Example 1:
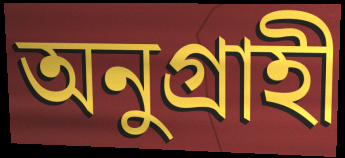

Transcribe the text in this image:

অনুগ্রাহী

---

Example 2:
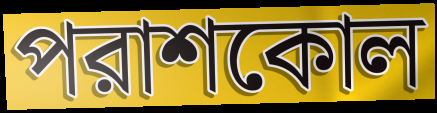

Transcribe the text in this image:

পরাশকোল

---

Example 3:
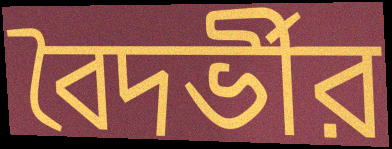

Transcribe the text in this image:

বৈদর্ভীর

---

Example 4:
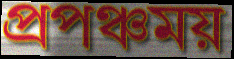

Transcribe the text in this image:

প্রপঞ্চময়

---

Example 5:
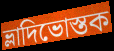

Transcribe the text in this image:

ভ্লাদিভোস্তক